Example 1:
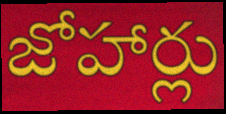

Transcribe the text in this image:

జోహార్లు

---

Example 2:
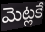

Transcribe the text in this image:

మెట్లకే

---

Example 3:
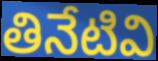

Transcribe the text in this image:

తినేటివి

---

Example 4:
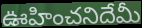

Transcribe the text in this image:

ఊహించనిదేమీ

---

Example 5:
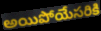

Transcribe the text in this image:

అయిపోయేసరికి